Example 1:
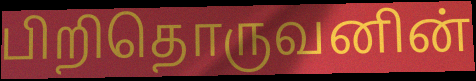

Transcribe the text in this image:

பிறிதொருவனின்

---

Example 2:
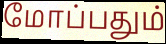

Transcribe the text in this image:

மோப்பதும்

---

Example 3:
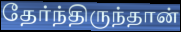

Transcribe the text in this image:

தேர்ந்திருந்தான்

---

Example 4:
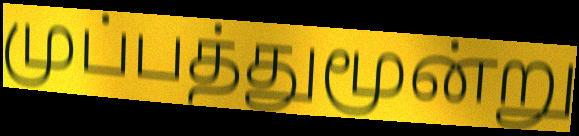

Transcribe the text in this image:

முப்பத்துமூன்று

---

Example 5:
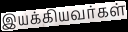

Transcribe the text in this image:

இயக்கியவர்கள்